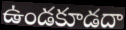
ఉండకూడదా